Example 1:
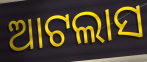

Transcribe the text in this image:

ଆଟଲାସ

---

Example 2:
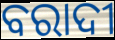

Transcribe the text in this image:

ବରାଦୀ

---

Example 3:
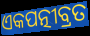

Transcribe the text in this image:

ଏକପତ୍ନୀବ୍ରତ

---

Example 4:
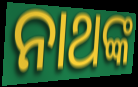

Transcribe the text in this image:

ନାଥଙ୍କ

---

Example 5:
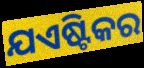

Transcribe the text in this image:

ଯଏଷ୍ଟିକର